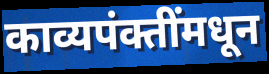
काव्यपंक्तींमधून